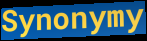
Synonymy